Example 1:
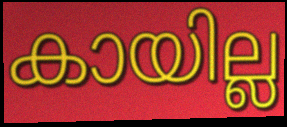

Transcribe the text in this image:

കായില്ല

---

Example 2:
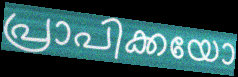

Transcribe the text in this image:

പ്രാപിക്കയോ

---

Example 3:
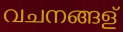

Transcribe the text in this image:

വചനങ്ങള്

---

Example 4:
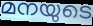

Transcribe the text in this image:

മനയുടെ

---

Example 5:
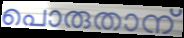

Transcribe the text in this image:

പൊരുതാന്